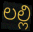
లల్లి